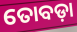
ତୋବଡ଼ା